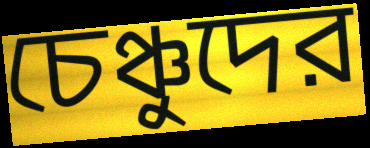
চেঞ্চুদের